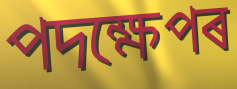
পদক্ষেপৰ